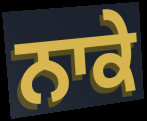
ਨਾਕੇ